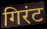
गिरंट